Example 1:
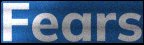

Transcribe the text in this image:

Fears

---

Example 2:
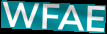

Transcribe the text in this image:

WFAE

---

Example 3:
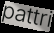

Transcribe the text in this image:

pattri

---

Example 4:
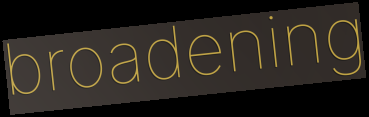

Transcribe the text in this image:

broadening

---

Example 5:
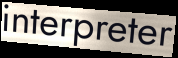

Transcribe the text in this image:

interpreter